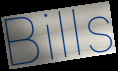
Bills